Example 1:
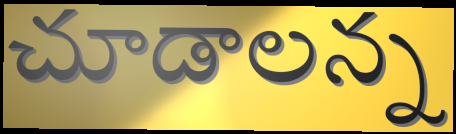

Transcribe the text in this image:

చూడాలన్న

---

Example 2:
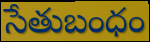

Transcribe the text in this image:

సేతుబంధం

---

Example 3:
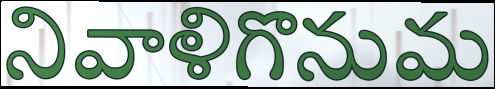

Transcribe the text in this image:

నివాళిగొనుమ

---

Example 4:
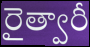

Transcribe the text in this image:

రైత్వారీ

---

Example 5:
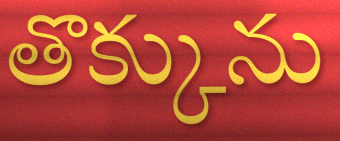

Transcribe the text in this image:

తొక్కును